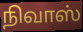
நிவாஸ்